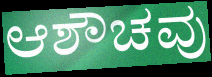
ಆಶೌಚವು